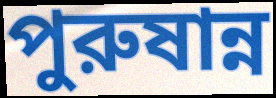
পুরুষান্ন